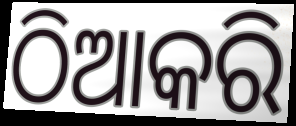
ଠିଆକରି